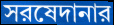
সরষেদানার